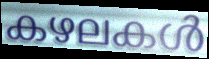
കഴലകൾ